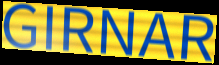
GIRNAR